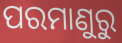
ପରମାଣୁରୁ